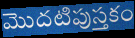
మొదటిపుస్తకం